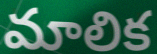
మాలిక